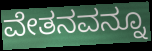
ವೇತನವನ್ನೂ